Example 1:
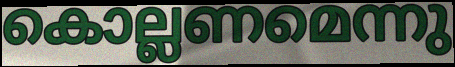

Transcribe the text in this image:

കൊല്ലണമെന്നു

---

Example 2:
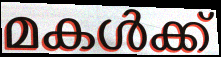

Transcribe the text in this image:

മകൾക്ക്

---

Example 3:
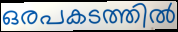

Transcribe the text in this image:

ഒരപകടത്തിൽ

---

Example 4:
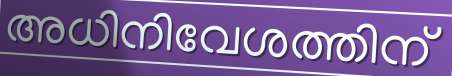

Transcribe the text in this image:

അധിനിവേശത്തിന്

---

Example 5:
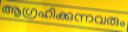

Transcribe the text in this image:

ആഗ്രഹിക്കുന്നവരും